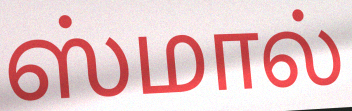
ஸ்மால்